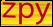
zpy